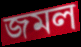
জমল